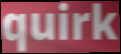
quirk